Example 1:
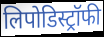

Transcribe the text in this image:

लिपोडिस्ट्रॉफी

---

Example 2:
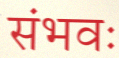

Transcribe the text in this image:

संभवः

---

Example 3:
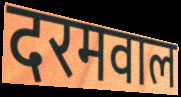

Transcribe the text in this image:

दरमवाल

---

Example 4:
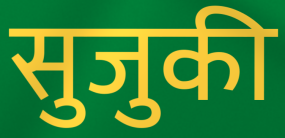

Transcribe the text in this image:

सुजुकी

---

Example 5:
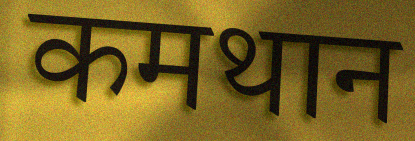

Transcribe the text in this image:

कमथान